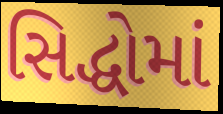
સિદ્ધોમાં